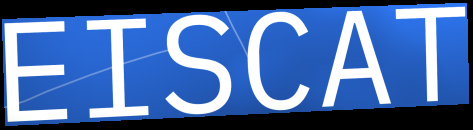
EISCAT